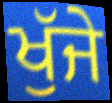
ਖੁੱਜੇ